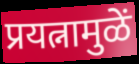
प्रयत्नामुळें